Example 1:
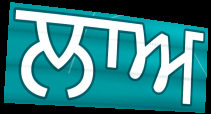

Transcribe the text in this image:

ਲਾਅ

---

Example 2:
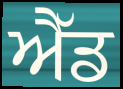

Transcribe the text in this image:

ਐੱਡ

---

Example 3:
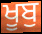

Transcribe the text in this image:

ਖੂਬੁ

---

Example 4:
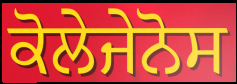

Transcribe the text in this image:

ਕੋਲੇਜੇਨੋਸ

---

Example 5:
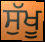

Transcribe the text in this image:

ਸੁੱਖੂ